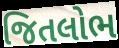
જિતલોભ